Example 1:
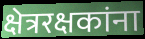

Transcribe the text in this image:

क्षेत्ररक्षकांना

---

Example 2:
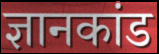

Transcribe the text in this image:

ज्ञानकांड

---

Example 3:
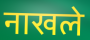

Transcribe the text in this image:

नाखले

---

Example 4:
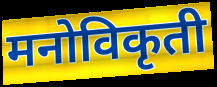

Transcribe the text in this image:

मनोविकृती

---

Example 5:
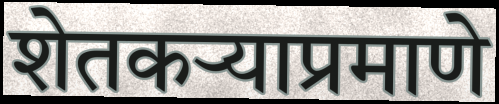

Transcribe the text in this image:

शेतकऱ्याप्रमाणे